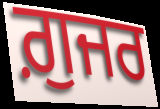
ਗ਼ੁਜਰ